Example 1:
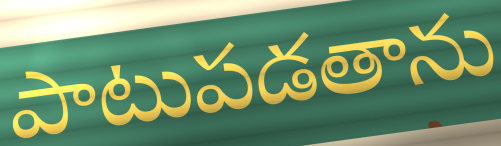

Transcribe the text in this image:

పాటుపడతాను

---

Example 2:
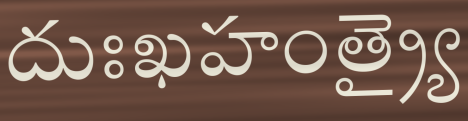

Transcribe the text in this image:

దుఃఖహంత్ర్యై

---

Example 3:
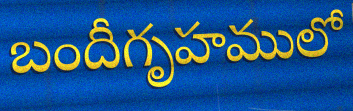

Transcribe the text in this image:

బందీగృహములో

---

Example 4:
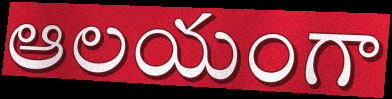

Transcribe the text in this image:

ఆలయంగా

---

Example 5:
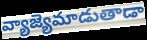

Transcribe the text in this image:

వ్యాజ్యెమాడుతాడా